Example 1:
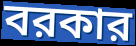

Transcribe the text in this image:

বরকার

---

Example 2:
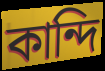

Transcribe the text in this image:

কান্দি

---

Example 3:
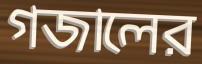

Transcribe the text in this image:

গজালের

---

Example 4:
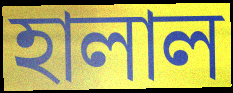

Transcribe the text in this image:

হালাল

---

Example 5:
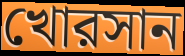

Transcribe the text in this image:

খোরসান